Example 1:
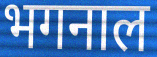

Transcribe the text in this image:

भगनाल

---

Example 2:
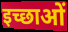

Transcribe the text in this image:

इच्छाओं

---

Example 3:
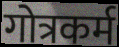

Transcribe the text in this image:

गोत्रकर्म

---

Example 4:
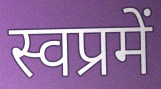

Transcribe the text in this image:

स्वप्रमें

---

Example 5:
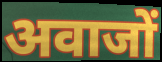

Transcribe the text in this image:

अवाजों